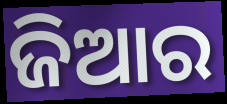
ଜିଆର